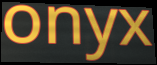
onyx